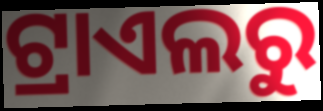
ଟ୍ରାଏଲରୁ